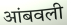
आंबवली